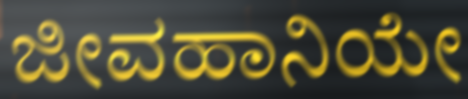
ಜೀವಹಾನಿಯೇ